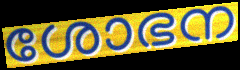
ശോഭന